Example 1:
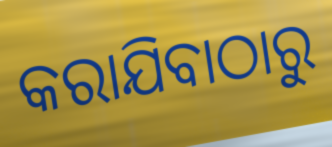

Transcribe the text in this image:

କରାଯିବାଠାରୁ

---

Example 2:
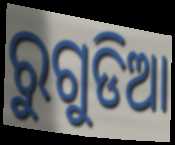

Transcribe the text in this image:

ରୁଗୁଡିଆ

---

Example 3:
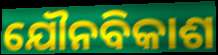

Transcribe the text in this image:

ଯୌନବିକାଶ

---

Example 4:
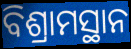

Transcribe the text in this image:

ବିଶ୍ରାମସ୍ଥାନ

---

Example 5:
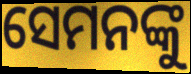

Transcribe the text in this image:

ସେମନଙ୍କୁ